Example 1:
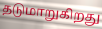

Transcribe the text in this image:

தடுமாறுகிறது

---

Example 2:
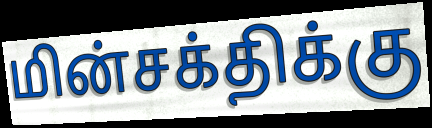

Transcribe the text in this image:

மின்சக்திக்கு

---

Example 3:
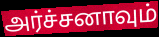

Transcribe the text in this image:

அர்ச்சனாவும்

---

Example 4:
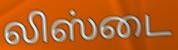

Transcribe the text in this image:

லிஸ்டை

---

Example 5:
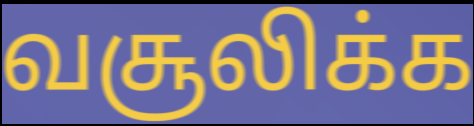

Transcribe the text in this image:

வசூலிக்க